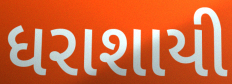
ધરાશાયી